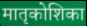
मातृकोशिका